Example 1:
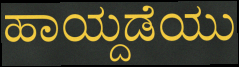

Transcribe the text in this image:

ಹಾಯ್ದಡೆಯು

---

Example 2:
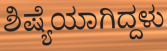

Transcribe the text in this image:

ಶಿಷ್ಯೆಯಾಗಿದ್ದಳು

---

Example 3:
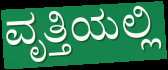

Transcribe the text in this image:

ವೃತ್ತಿಯಲ್ಲಿ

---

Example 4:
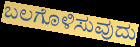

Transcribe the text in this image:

ಬಲಗೊಳಿಸುವುದು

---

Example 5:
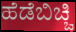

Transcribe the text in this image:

ಹೆಡೆಬಿಚ್ಚಿ